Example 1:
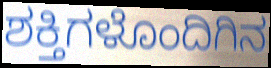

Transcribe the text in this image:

ಶಕ್ತಿಗಳೊಂದಿಗಿನ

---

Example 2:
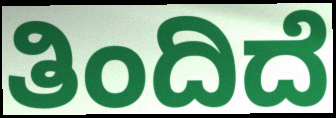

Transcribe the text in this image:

ತಿಂದಿದೆ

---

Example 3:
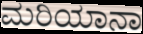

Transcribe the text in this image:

ಮರಿಯಾನಾ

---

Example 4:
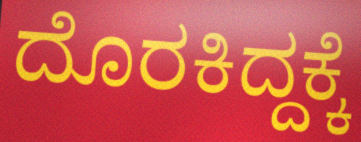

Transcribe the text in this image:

ದೊರಕಿದ್ದಕ್ಕೆ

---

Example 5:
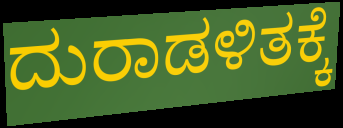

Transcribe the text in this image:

ದುರಾಡಳಿತಕ್ಕೆ